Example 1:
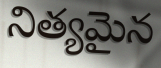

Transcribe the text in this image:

నిత్యమైన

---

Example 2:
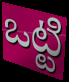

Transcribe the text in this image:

ఒట్టి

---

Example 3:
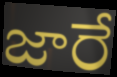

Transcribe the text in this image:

జారే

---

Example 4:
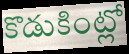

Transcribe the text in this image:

కొడుకింట్లో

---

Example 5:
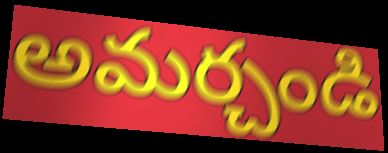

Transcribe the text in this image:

అమర్చండి